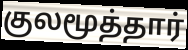
குலமூத்தார்